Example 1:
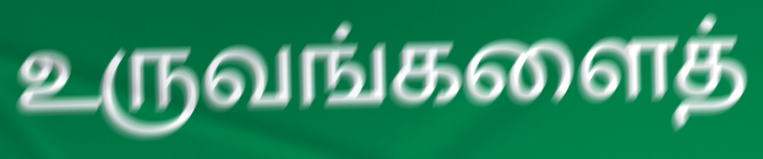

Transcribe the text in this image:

உருவங்களைத்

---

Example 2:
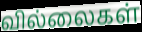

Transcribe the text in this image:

வில்லைகள்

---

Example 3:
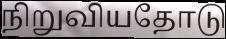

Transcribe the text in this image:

நிறுவியதோடு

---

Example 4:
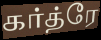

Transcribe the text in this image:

கர்த்ரே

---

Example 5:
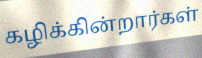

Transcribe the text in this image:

கழிக்கின்றார்கள்